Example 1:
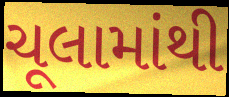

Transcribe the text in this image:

ચૂલામાંથી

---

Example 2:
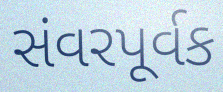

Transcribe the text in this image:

સંવરપૂર્વક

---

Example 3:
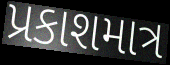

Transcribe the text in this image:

પ્રકાશમાત્ર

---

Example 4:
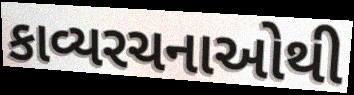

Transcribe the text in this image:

કાવ્યરચનાઓથી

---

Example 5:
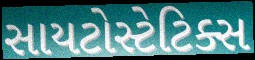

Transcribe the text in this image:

સાયટોસ્ટેટિક્સ